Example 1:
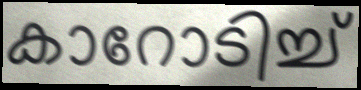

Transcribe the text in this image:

കാറോടിച്ച്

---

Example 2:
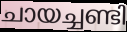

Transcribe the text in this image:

ചായച്ചണ്ടി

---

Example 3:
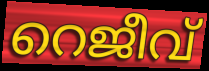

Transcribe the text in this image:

റെജീവ്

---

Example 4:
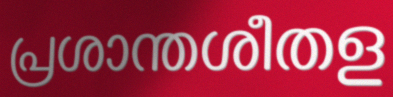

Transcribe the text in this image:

പ്രശാന്തശീതള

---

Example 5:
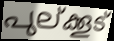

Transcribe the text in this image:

പുല്ക്കൂട്